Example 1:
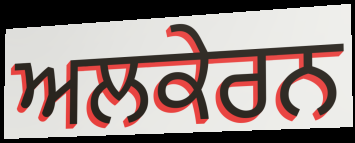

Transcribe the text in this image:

ਅਲਕੇਰਨ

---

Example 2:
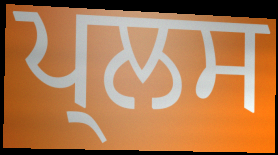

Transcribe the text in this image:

ਪ੍ਲਸ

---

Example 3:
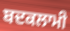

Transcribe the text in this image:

ਬਦਕਲਾਮੀ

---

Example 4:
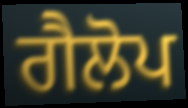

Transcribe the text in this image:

ਗੈਲੋਪ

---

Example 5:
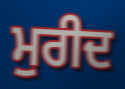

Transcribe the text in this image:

ਮੁਰੀਦ